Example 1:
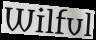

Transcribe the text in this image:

Wilful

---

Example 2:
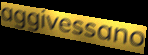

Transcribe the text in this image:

aggivessano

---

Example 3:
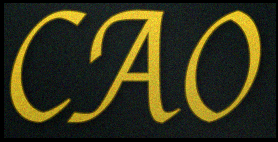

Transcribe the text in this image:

CAO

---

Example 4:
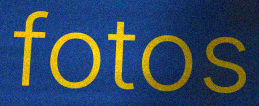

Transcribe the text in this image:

fotos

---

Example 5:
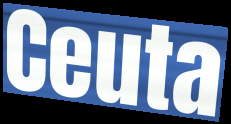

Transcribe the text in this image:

Ceuta